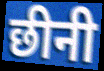
छीनी